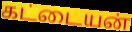
கட்டையன்